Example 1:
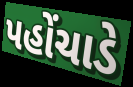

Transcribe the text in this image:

પહોંચાડે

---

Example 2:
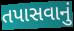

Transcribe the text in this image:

તપાસવાનું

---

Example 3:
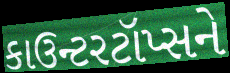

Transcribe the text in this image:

કાઉન્ટરટૉપ્સને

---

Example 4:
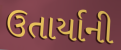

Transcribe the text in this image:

ઉતાર્યાની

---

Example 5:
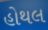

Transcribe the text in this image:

હોથલ